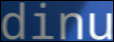
dinu